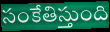
సంకేతిస్తుంది